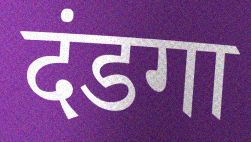
दंडगा